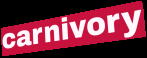
carnivory